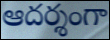
ఆదర్శంగా